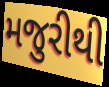
મજુરીથી